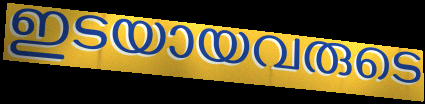
ഇടയായവരുടെ